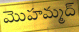
మొహమ్మద్